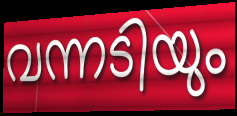
വന്നടിയും